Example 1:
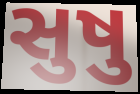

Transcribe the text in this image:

સુષુ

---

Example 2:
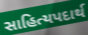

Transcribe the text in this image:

સાહિત્યપદાર્થ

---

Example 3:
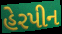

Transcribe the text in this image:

હેરપીન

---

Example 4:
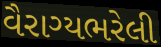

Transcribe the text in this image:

વૈરાગ્યભરેલી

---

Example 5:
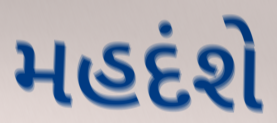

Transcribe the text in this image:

મહદંશે